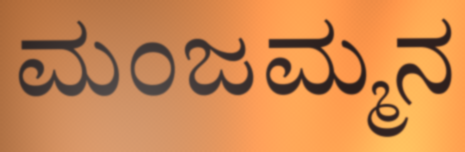
ಮಂಜಮ್ಮನ